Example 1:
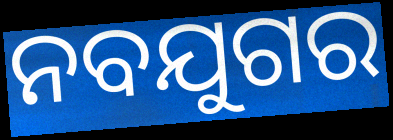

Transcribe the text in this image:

ନବଯୁଗର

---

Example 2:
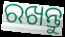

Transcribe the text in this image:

ରଖନ୍ତୁ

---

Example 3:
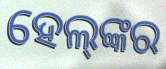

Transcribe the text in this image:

ହେଲ୍‌ଙ୍କର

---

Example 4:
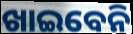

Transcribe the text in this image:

ଖାଇବେନି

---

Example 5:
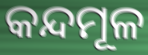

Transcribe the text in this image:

କନ୍ଦମୂଳ